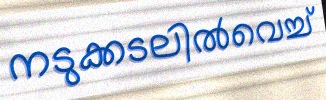
നടുക്കടലിൽവെച്ച്